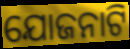
ଯୋଜନାଟି